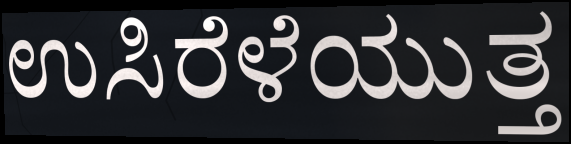
ಉಸಿರೆಳೆಯುತ್ತ